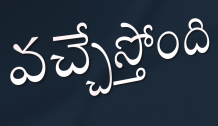
వచ్చేస్తోంది